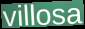
villosa